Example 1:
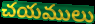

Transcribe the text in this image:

చయములు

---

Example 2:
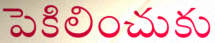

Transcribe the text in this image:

పెకిలించుకు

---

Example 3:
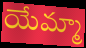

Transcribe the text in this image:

యేమ్మా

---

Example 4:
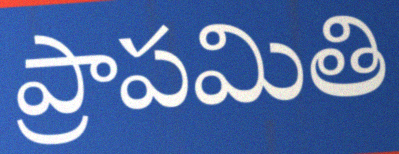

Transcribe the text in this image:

ప్రాపమితి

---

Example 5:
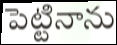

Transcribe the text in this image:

పెట్టినాను